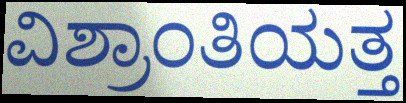
ವಿಶ್ರಾಂತಿಯತ್ತ